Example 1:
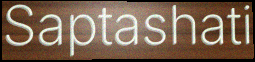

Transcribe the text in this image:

Saptashati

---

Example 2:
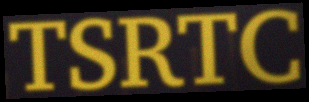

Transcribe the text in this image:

TSRTC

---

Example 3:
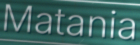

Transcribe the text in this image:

Matania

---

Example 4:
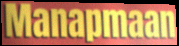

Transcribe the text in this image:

Manapmaan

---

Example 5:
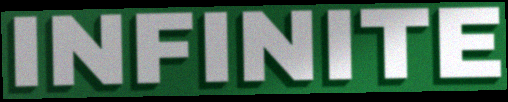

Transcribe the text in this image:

INFINITE